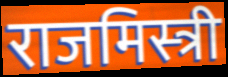
राजमिस्त्री